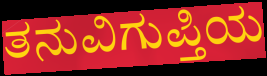
ತನುವಿಗುಪ್ತಿಯ